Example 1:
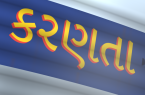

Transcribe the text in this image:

કરણતા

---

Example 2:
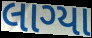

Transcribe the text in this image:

લાગ્યા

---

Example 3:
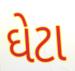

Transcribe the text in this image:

ઘેટા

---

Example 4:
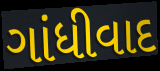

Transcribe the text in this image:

ગાંધીવાદ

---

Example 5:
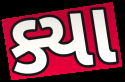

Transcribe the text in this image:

ક્યા